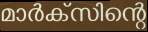
മാർക്‌സിന്റെ